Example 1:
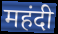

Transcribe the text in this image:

महंदी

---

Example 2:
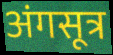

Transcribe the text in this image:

अंगसूत्र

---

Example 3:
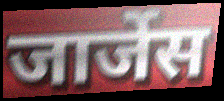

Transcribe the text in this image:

जार्जेस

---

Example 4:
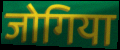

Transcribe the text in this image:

जोगिया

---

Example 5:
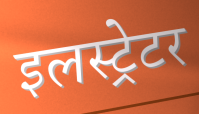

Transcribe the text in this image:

इलस्ट्रेटर